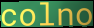
colno